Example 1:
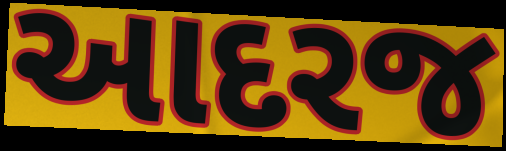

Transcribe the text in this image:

આદરજ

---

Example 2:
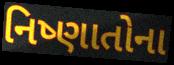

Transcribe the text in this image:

નિષ્ણાતોના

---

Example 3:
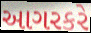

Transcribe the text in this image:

આગરકરે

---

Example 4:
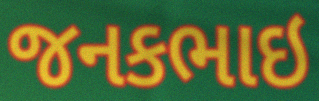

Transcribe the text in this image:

જનકભાઇ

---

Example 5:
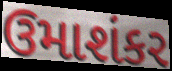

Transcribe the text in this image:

ઉમાશંકર